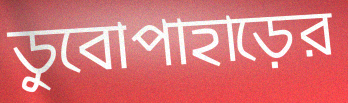
ডুবোপাহাড়ের